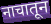
नाचातून